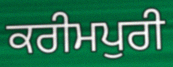
ਕਰੀਮਪੁਰੀ